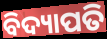
ବିଦ୍ୟାପତି